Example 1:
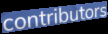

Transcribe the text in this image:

contributors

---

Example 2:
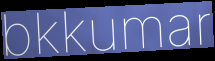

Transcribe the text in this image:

bkkumar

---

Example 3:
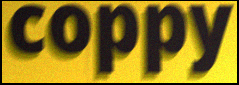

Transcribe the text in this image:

coppy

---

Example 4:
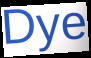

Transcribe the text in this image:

Dye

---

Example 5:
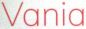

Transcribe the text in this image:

Vania